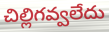
చిల్లిగవ్వలేదు